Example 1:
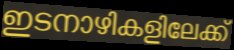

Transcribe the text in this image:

ഇടനാഴികളിലേക്ക്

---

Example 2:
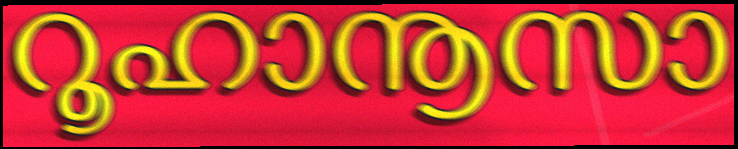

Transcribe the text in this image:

റൂഹാനൂസാ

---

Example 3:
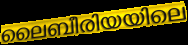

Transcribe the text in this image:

ലൈബീരിയയിലെ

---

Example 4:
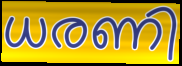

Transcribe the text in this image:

ധരണി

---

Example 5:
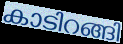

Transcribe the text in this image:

കാടിറങ്ങി